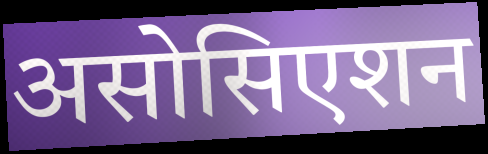
असोसिएशन